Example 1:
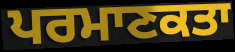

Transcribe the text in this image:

ਪਰਮਾਣਕਤਾ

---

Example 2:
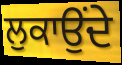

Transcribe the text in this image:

ਲੁਕਾਉਂਦੇ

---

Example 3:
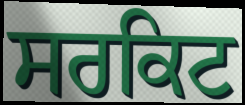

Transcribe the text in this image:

ਸਰਕਿਟ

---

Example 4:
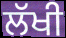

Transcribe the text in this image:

ਲੱਖੀ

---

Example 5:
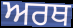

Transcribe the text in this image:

ਅਰਥ